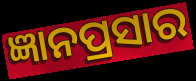
ଜ୍ଞାନପ୍ରସାର